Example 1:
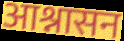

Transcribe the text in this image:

आश्नासन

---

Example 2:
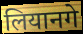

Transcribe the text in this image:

लियानगे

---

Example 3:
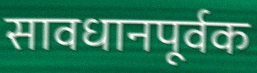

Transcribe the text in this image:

सावधानपूर्वक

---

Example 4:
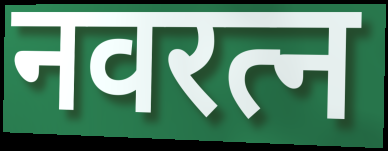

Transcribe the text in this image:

नवरत्न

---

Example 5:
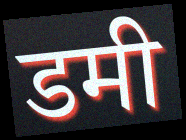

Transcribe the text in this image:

डमी